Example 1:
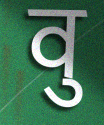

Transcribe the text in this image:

वु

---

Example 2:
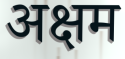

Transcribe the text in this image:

अक्षम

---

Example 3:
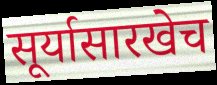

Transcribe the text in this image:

सूर्यासारखेच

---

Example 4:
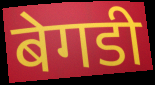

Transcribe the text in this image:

बेगडी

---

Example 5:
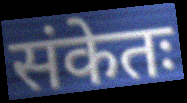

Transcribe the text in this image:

संकेतः